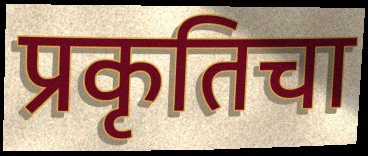
प्रकृतिचा